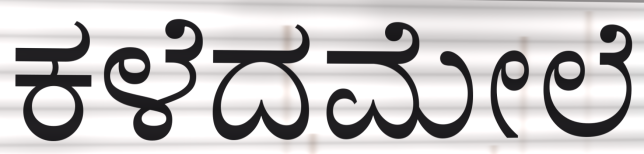
ಕಳೆದಮೇಲೆ